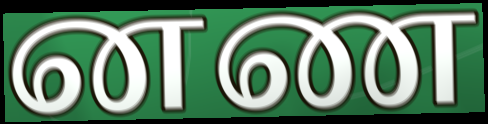
னண